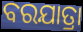
ବରଯାତ୍ରା